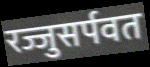
रज्जुसर्पवत